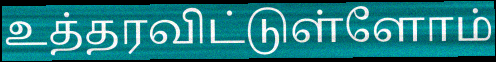
உத்தரவிட்டுள்ளோம்